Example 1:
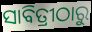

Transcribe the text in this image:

ସାବିତ୍ରୀଠାରୁ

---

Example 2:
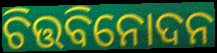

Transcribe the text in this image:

ଚିତ୍ତବିନୋଦନ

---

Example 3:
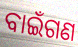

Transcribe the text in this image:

ବାଇଁଗଣ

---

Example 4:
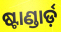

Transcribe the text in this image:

ଷ୍ଟାଣ୍ଡାର୍ଡ଼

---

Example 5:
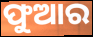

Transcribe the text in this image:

ଫୁଆର